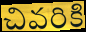
చివరికి